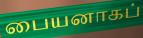
பையனாகப்